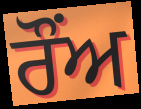
ਰੌਂਅ